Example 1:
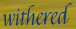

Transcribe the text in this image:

withered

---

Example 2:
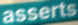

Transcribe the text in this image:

asserts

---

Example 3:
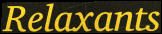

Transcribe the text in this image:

Relaxants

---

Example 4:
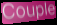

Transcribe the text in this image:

Couple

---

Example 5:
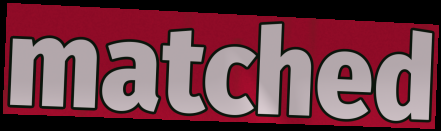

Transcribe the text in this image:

matched